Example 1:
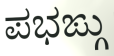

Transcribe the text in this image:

ಪಭಙ್ಗು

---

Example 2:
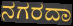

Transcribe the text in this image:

ನಗರದಾ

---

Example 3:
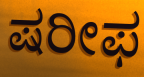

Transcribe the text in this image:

ಷರೀಫ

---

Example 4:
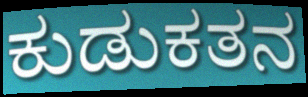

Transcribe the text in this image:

ಕುಡುಕತನ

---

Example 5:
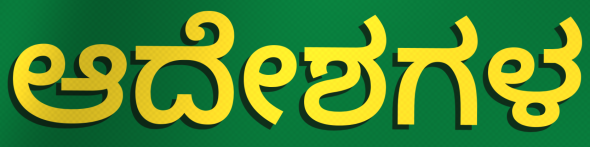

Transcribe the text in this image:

ಆದೇಶಗಳ